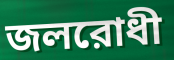
জলরোধী